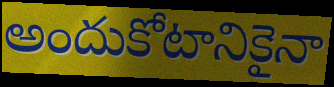
అందుకోటానికైనా